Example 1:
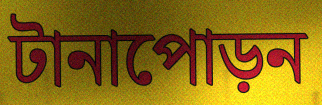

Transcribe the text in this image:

টানাপোড়ন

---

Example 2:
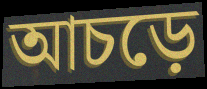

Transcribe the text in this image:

আচড়ে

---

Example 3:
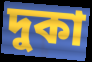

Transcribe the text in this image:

দুকা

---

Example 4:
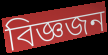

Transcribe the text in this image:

বিজ্ঞজন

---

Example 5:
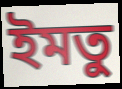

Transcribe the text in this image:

ইমতু